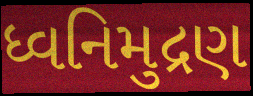
ધ્વનિમુદ્રણ